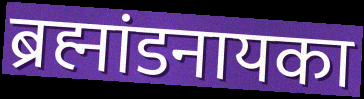
ब्रह्मांडनायका